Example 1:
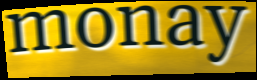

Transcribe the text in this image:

monay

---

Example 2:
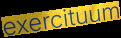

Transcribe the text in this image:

exercituum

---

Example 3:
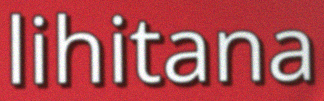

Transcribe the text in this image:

lihitana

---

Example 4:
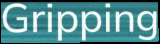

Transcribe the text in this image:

Gripping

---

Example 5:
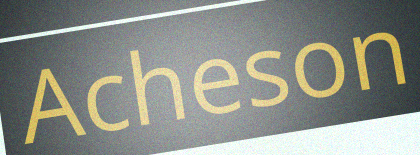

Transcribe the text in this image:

Acheson